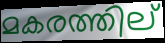
മകരത്തില്